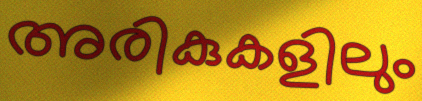
അരികുകളിലും